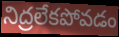
నిద్రలేకపోవడం